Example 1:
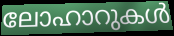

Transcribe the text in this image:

ലോഹാറുകൾ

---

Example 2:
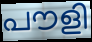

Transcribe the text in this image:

പൗളി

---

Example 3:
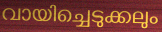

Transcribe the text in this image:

വായിച്ചെടുക്കലും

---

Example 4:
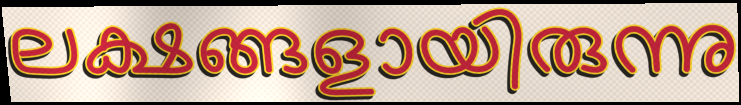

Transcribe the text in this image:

ലക്ഷങ്ങളായിരുന്നു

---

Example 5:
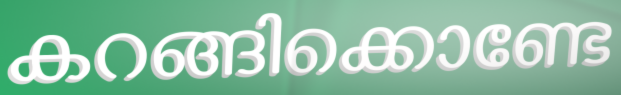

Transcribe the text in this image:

കറങ്ങിക്കൊണ്ടേ